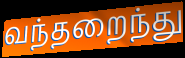
வந்தறைந்து